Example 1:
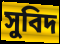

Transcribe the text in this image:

সুবিদ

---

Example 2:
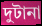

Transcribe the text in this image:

দুটানা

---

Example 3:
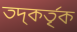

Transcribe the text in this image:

তদ্‌কর্তৃক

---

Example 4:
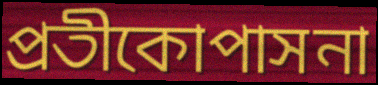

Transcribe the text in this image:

প্রতীকোপাসনা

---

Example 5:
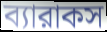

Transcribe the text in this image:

ব্যারাকস